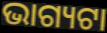
ଭାଗ୍ୟଟା